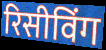
रिसीविंग